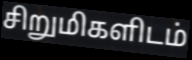
சிறுமிகளிடம்